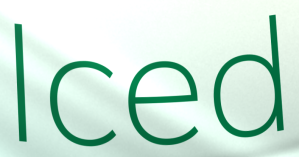
Iced